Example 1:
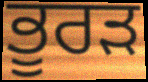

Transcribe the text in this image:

ਭੂਰੜ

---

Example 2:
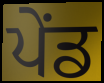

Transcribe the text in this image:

ਪੇਂਡ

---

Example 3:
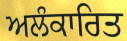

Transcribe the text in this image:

ਅਲੰਕਾਰਿਤ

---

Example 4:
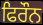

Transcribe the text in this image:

ਫਿਰੌਨ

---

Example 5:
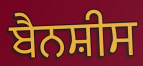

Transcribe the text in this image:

ਬੈਨਸ਼ੀਸ